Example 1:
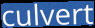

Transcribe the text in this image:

culvert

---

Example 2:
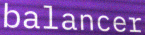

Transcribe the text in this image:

balancer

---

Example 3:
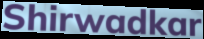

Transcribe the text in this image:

Shirwadkar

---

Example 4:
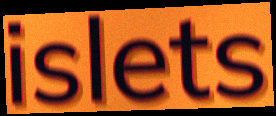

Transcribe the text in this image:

islets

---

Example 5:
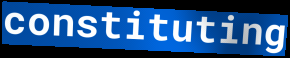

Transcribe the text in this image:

constituting